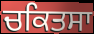
ਚਕਿਤਸਾ